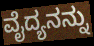
ವೈದ್ಯನನ್ನು